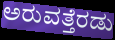
ಅರುವತ್ತೆರಡು